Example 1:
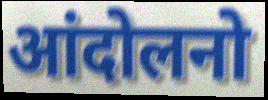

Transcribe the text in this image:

आंदोलनो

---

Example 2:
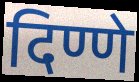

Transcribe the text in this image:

दिण्णे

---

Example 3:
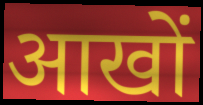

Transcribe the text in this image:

आखों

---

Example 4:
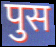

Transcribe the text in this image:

पुस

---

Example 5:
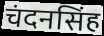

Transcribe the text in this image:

चंदनसिंह